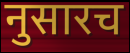
नुसारच